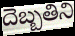
దెబ్బతిని